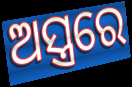
ଅସ୍ତ୍ରରେ